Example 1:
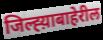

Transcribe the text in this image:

जिल्ह्य़ाबाहेरील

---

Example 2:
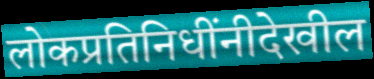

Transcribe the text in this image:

लोकप्रतिनिधींनीदेखील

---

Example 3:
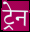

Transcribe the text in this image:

ट्रेन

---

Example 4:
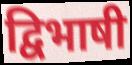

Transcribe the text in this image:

द्विभाषी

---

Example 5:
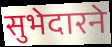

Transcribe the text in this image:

सुभेदारने